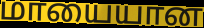
மாயையான